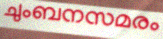
ചുംബനസമരം